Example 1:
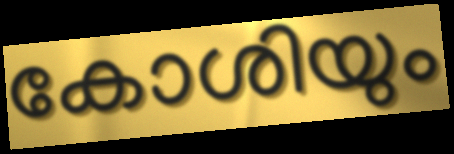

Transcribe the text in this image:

കോശിയും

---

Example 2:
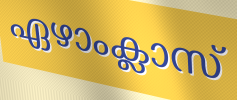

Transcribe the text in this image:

ഏഴാംക്ലാസ്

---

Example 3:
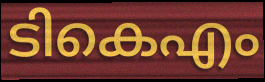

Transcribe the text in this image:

ടികെഎം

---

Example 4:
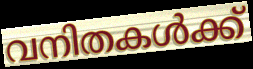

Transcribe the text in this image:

വനിതകൾക്ക്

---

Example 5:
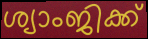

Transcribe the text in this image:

ശ്യാംജിക്ക്